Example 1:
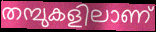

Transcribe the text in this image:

തമ്പുകളിലാണ്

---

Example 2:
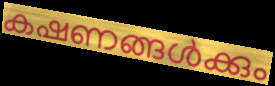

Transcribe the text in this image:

കഷണങ്ങൾക്കും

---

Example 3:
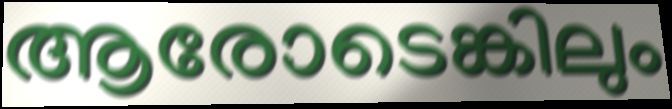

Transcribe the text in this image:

ആരോടെങ്കിലും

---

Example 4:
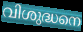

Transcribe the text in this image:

വിശുദ്ധനെ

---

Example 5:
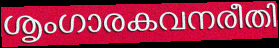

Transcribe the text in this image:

ശൃംഗാരകവനരീതി